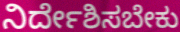
ನಿರ್ದೇಶಿಸಬೇಕು